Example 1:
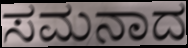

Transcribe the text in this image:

ಸಮನಾದ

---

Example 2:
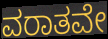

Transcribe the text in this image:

ವರಾತವೇ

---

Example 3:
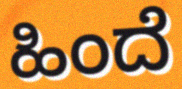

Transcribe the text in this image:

ಹಿಂದೆ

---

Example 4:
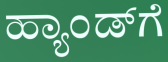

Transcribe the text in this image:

ಹ್ಯಾಂಡ್‌ಗೆ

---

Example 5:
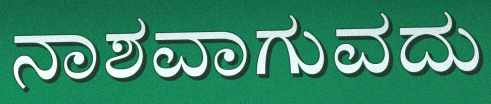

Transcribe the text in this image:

ನಾಶವಾಗುವದು